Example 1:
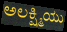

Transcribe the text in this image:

ಅಲಕ್ಷ್ಮಿಯು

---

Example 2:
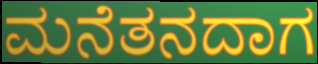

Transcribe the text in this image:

ಮನೆತನದಾಗ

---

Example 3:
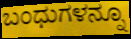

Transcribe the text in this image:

ಬಂಧುಗಳನ್ನೂ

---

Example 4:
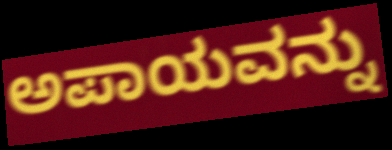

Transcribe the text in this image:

ಅಪಾಯವನ್ನು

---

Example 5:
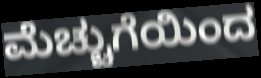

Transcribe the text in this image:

ಮೆಚ್ಚುಗೆಯಿಂದ